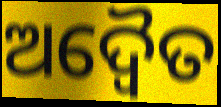
ଅଦ୍ୱୈତ